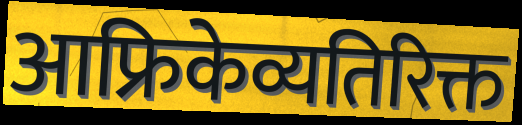
आफ्रिकेव्यतिरिक्त